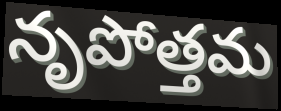
నృపోత్తమ